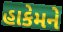
હાકેમને